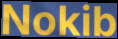
Nokib